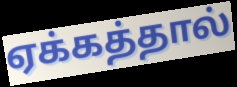
ஏக்கத்தால்